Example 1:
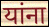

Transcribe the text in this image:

यांना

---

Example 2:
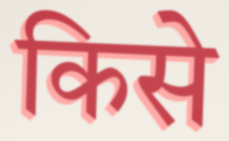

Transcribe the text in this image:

किसे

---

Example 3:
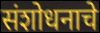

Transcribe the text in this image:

संशोधनाचे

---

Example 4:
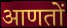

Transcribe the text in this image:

आणतों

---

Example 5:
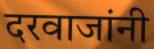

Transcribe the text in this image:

दरवाजांनी